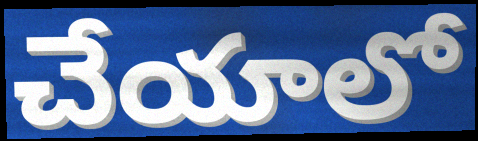
చేయాలో